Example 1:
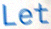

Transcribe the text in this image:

Let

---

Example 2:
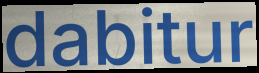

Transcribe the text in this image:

dabitur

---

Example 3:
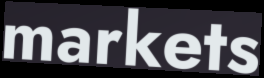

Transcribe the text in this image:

markets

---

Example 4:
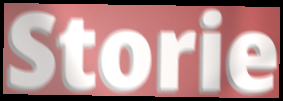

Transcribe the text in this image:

Storie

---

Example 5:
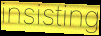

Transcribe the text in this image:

insisting